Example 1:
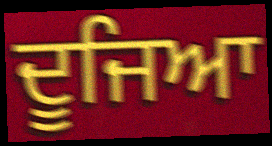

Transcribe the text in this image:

ਦੂਜਿਆ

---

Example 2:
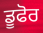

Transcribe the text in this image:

ਡੂਫੋਰ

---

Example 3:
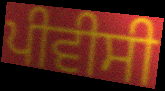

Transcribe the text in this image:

ਪੀਵੀਸੀ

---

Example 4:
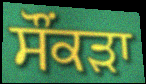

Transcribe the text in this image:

ਸੌਂਕੜਾ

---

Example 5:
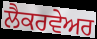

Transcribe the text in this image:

ਲੈਕਰਵੇਅਰ